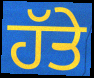
ਹੱਤੇ